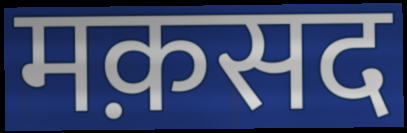
मक़सद